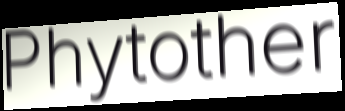
Phytother